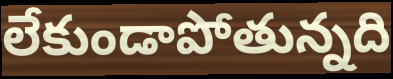
లేకుండాపోతున్నది